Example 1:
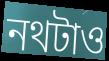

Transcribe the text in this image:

নথটাও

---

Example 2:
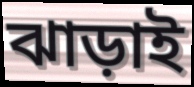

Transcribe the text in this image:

ঝাড়াই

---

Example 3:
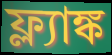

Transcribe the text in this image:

ফ্ল্যাঙ্ক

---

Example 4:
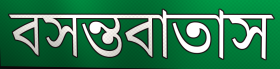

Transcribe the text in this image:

বসন্তবাতাস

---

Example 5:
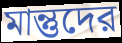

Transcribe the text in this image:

মান্তুদের